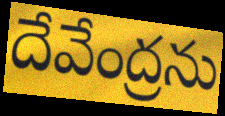
దేవేంద్రను